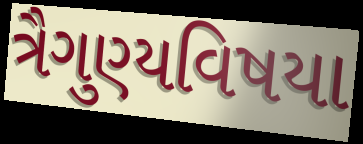
ત્રૈગુણ્યવિષયા